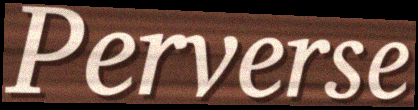
Perverse